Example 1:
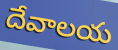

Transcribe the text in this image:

దేవాలయ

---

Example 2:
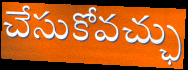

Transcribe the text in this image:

చేసుకోవచ్ఛు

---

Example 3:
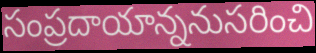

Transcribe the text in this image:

సంప్రదాయాన్ననుసరించి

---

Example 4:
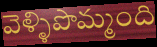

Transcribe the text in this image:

వెళ్ళిపొమ్మంది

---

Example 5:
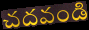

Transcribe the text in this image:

చదవండి